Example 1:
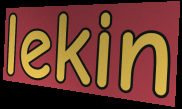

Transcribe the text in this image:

lekin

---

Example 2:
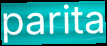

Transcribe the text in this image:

parita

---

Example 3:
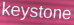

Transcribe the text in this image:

keystone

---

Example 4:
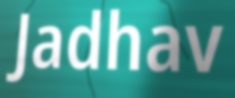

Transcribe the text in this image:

Jadhav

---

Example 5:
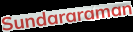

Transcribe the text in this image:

Sundararaman